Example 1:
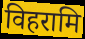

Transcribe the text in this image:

विहरामि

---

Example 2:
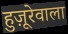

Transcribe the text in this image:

हुज़ूरेवाला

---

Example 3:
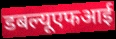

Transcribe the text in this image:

डबल्यूएफआई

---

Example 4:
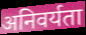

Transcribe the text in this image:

अनिवर्यता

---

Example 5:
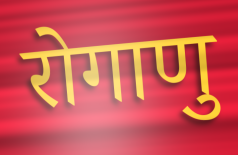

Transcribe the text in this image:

रोगाणु